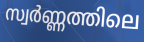
സ്വർണ്ണത്തിലെ